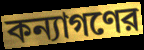
কন্যাগণের